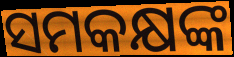
ସମକକ୍ଷଙ୍କ